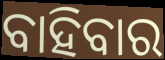
ବାହିବାର